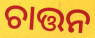
ଚାତ୍ତନ